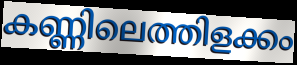
കണ്ണിലെത്തിളക്കം